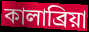
কালাব্রিয়া